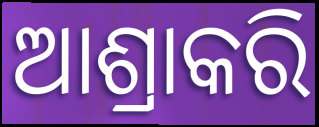
ଆଶ୍ରାକରି